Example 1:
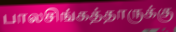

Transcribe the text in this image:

பாலசிங்கத்தாருக்கு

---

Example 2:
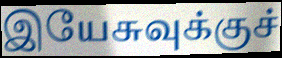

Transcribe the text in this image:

இயேசுவுக்குச்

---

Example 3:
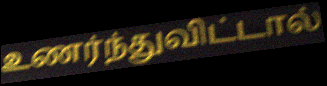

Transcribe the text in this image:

உணர்ந்துவிட்டால்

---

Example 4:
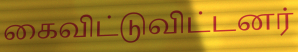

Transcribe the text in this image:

கைவிட்டுவிட்டனர்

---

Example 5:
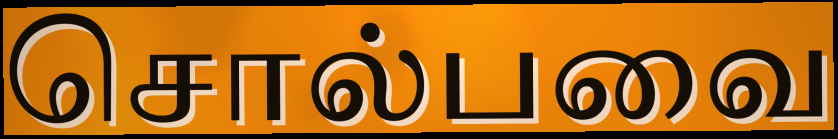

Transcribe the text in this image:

சொல்பவை